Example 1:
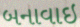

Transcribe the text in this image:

બનાવાઇ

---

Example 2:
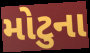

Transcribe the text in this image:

મોટુના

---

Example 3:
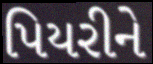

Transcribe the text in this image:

પિયરીને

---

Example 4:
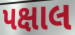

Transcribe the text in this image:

પક્ષાલ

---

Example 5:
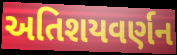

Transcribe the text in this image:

અતિશયવર્ણન